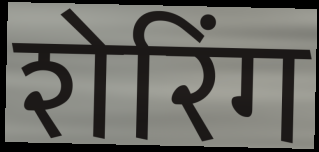
शेरिंग